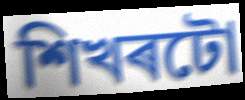
শিখৰটো